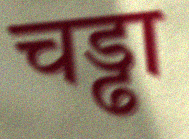
चड्ढा